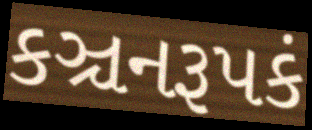
કઞ્ચનરૂપકં